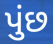
પુંછ